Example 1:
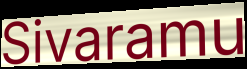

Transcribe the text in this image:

Sivaramu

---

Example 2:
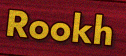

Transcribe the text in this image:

Rookh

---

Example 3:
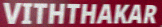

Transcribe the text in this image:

VITHTHAKAR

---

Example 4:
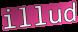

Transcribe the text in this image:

illud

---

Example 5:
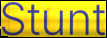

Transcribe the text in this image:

Stunt